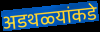
अडथळ्यांकडे